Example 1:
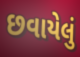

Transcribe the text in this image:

છવાયેલું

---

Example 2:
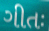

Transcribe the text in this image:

ગીતઃ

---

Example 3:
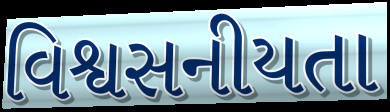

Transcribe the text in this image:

વિશ્વસનીયતા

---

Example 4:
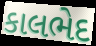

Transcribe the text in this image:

કાલભેદ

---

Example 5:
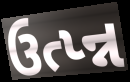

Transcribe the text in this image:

ઉત્પ્ન્ન